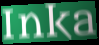
Inka